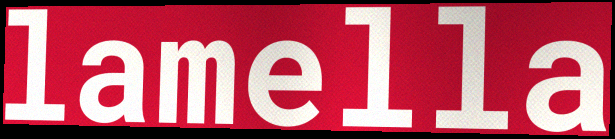
lamella